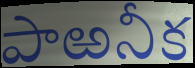
పాఱనీక